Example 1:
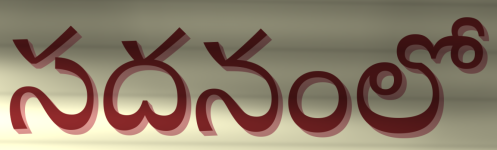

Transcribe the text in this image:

సదనంలో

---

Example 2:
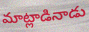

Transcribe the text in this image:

మాట్లాడినాడు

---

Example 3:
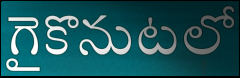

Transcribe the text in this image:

గైకొనుటలో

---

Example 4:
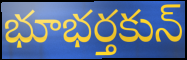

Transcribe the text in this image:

భూభర్తకున్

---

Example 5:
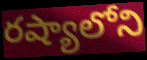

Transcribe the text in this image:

రష్యాలోని